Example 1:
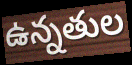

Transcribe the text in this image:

ఉన్నతుల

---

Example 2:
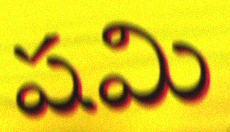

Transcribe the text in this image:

షమి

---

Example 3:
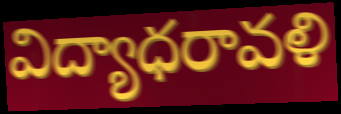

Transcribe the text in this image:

విద్యాధరావళి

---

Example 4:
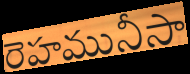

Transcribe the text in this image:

రెహమునీసా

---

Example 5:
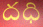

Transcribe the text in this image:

దధి